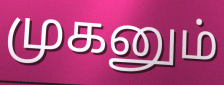
முகனும்